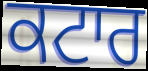
ਕਟਾਰ